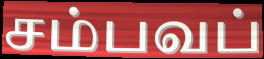
சம்பவப்